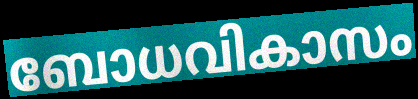
ബോധവികാസം